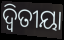
ଦ୍ଵିତୀୟା